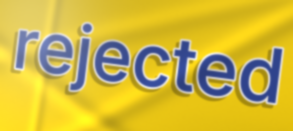
rejected